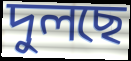
দুলছে